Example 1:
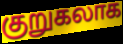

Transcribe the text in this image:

குறுகலாக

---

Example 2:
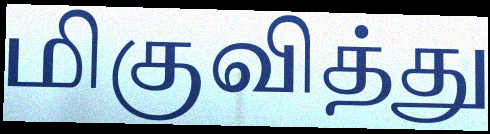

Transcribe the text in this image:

மிகுவித்து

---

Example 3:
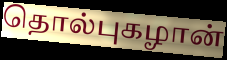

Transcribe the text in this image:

தொல்புகழான்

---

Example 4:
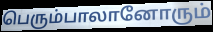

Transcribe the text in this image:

பெரும்பாலானோரும்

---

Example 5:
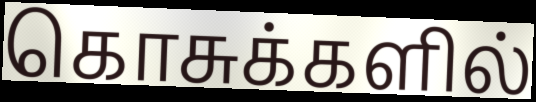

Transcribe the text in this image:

கொசுக்களில்